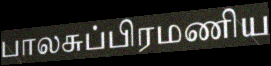
பாலசுப்பிரமணிய